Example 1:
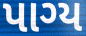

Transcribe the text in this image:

પાગ્ય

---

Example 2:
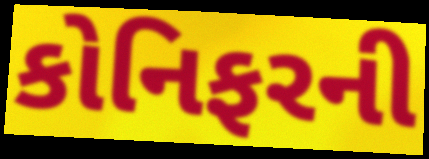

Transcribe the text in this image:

કોનિફરની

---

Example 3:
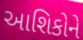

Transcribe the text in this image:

આશિકોને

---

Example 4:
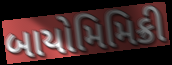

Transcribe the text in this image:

બાયોમિમિક્રી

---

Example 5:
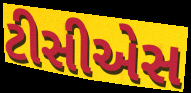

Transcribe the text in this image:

ટીસીએસ